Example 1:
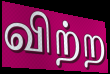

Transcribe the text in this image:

விற்ற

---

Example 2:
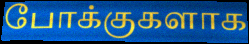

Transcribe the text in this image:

போக்குகளாக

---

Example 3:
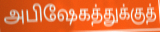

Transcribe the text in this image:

அபிஷேகத்துக்குத்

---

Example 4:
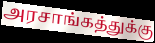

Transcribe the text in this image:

அரசாங்கத்துக்கு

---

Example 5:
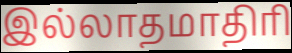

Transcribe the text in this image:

இல்லாதமாதிரி